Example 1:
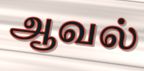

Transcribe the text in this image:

ஆவல்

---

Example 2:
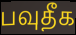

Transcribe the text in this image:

பவுதீக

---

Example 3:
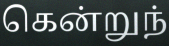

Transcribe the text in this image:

கென்றுந்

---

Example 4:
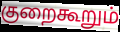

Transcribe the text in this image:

குறைகூறும்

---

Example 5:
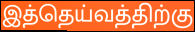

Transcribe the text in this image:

இத்தெய்வத்திற்கு